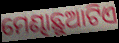
ମେଣ୍ଢାଛୁଆଟିଏ